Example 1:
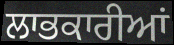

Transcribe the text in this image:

ਲਾਭਕਾਰੀਆਂ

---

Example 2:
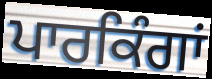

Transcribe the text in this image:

ਪਾਰਕਿੰਗਾਂ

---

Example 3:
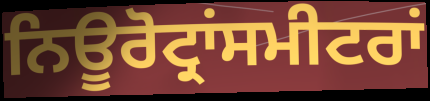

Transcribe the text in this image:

ਨਿਊਰੋਟ੍ਰਾਂਸਮੀਟਰਾਂ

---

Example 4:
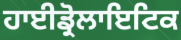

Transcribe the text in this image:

ਹਾਈਡ੍ਰੋਲਾਇਟਿਕ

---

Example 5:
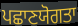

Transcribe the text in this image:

ਪਛਾਣਯੋਗਤਾ